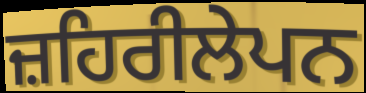
ਜ਼ਹਿਰੀਲੇਪਨ